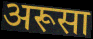
अरूसा